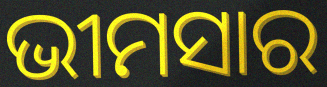
ଭୀମସାର